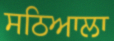
ਸਠਿਆਲਾ